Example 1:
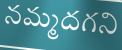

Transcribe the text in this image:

నమ్మదగని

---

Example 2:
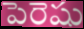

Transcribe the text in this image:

పెరెషు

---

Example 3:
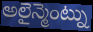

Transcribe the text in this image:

అలైన్మెంట్ను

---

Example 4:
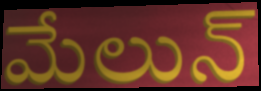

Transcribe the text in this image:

మేలున్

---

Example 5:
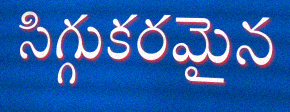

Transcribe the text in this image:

సిగ్గుకరమైన